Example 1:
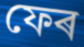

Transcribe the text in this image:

ফেৰ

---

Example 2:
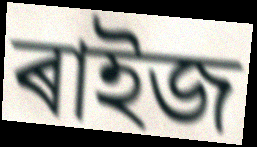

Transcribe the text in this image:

ৰাইজ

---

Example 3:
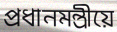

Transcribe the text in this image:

প্ৰধানমন্ত্ৰীয়ে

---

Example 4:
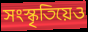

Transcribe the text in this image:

সংস্কৃতিয়েও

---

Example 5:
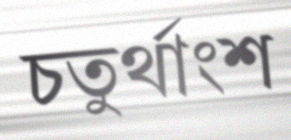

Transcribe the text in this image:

চতুৰ্থাংশ